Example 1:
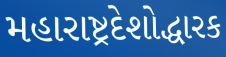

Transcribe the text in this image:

મહારાષ્ટ્રદેશોદ્ધારક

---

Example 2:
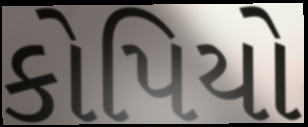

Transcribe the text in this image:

કોપિયો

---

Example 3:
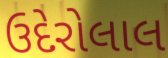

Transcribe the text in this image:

ઉદેરોલાલ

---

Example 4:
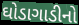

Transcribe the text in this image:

ઘોડાગાડીનો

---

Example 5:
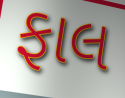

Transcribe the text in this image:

ફાલ